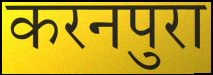
करनपुरा